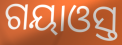
ଗୟାଓସ୍ତ